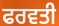
ਫਰਵਤੀ